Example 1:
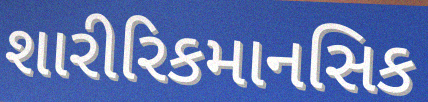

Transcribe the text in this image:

શારીરિકમાનસિક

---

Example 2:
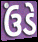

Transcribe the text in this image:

ઉંડે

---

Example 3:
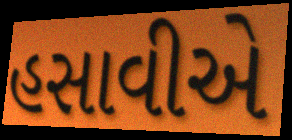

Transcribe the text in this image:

હસાવીએ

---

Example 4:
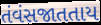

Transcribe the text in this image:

તંવંસજાતતાય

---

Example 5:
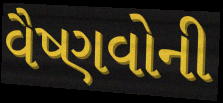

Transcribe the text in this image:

વૈષ્ણવોની